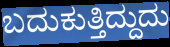
ಬದುಕುತ್ತಿದ್ದುದು